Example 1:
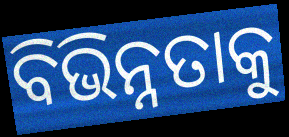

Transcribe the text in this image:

ବିଭିନ୍ନତାକୁ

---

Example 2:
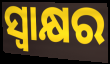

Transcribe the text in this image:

ସ୍ଵାକ୍ଷର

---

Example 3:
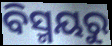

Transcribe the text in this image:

ବିସ୍ମୟରୁ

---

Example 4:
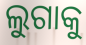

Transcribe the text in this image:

ଲୁଗାକୁ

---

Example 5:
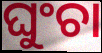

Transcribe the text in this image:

ଘୁଂଚା